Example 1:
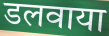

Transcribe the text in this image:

डलवाया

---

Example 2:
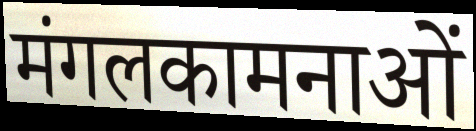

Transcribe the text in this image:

मंगलकामनाओं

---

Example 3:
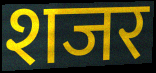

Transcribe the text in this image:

शजर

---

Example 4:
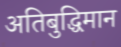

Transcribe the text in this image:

अतिबुद्धिमान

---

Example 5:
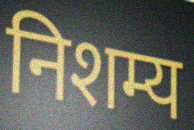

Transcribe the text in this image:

निशम्य